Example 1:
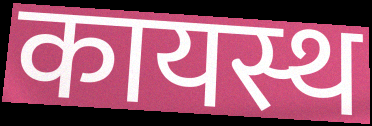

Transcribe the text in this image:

कायस्थ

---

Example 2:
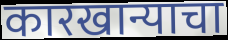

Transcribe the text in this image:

कारखान्याचा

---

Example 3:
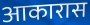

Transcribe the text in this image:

आकारास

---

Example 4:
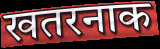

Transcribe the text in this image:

खतरनाक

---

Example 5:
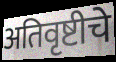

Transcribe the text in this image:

अतिवृष्टीचे